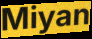
Miyan